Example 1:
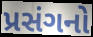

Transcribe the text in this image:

પ્રસંગનો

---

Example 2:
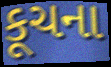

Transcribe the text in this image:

કૂચના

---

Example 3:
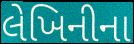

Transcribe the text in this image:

લેખિનીના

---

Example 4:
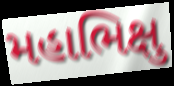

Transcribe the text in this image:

મહાભિક્ષુ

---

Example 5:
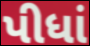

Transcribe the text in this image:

પીધાં